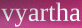
vyartha